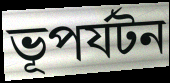
ভূপর্যটন